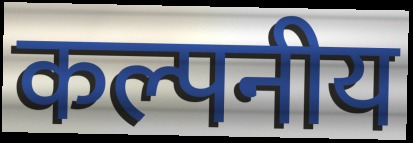
कल्पनीय